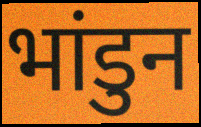
भांडुन